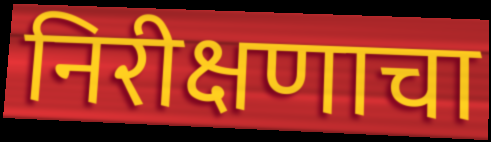
निरीक्षणाचा